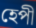
হেপী